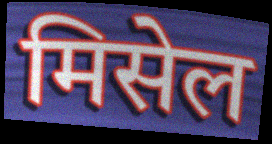
मिसेल